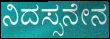
ನಿದಸ್ಸನೇನ